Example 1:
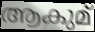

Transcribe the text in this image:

ആകുമ്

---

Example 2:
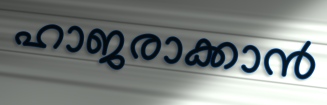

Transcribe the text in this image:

ഹാജരാക്കാൻ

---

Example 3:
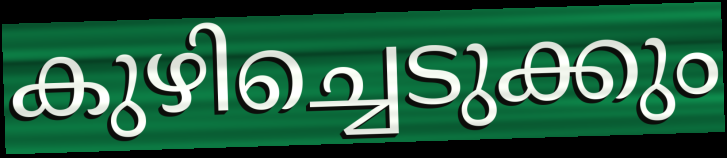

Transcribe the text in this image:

കുഴിച്ചെടുക്കും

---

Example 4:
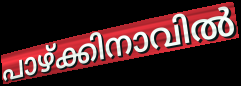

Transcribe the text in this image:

പാഴ്ക്കിനാവിൽ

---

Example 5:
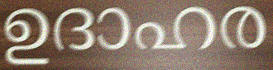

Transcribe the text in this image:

ഉദാഹര